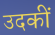
उदकीं